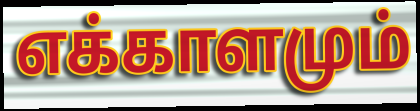
எக்காளமும்